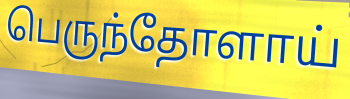
பெருந்தோளாய்